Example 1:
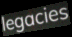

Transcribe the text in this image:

legacies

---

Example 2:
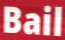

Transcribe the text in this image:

Bail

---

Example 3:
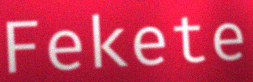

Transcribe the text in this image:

Fekete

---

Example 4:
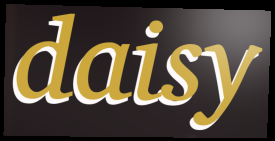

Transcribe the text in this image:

daisy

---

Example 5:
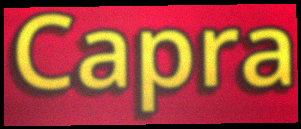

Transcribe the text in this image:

Capra